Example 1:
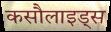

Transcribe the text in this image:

कसौलाइड्स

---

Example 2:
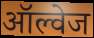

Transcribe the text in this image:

ऑल्वेज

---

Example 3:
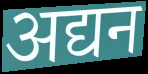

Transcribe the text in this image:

अद्यन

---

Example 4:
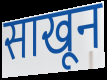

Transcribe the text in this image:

साखून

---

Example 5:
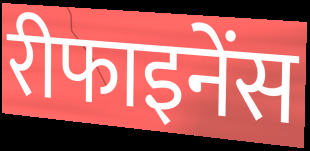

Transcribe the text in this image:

रीफाइनेंस